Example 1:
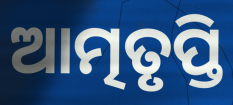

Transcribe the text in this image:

ଆତ୍ମତୃପ୍ତି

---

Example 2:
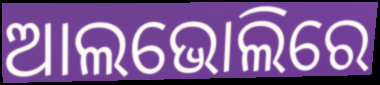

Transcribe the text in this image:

ଆଲଭୋଲିରେ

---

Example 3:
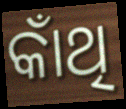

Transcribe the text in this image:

କାଁଥି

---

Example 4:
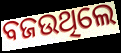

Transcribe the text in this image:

ବଜଉଥିଲେ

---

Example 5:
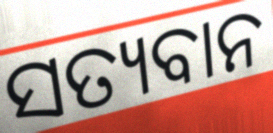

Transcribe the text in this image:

ସତ୍ୟବାନ